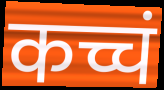
कच्चं